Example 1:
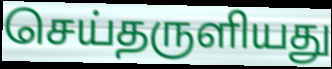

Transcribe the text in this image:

செய்தருளியது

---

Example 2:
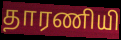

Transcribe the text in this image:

தாரணியி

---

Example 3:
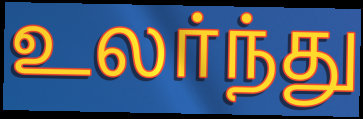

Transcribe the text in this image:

உலர்ந்து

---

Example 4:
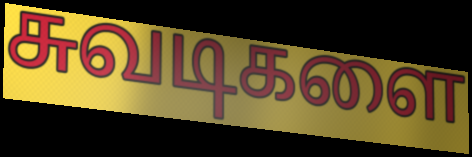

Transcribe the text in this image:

சுவடிகளை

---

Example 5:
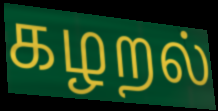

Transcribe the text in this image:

கழறல்